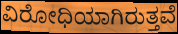
ವಿರೋಧಿಯಾಗಿರುತ್ತವೆ